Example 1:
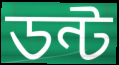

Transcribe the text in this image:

ডন্ট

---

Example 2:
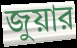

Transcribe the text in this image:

জুয়ার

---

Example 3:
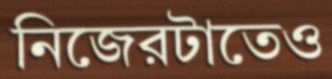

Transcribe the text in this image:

নিজেরটাতেও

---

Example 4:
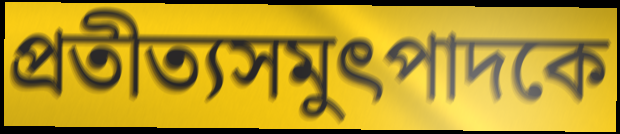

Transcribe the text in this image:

প্রতীত্যসমুৎপাদকে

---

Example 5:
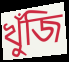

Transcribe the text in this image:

খুঁজি